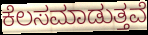
ಕೆಲಸಮಾಡುತ್ತವೆ